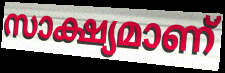
സാക്ഷ്യമാണ്